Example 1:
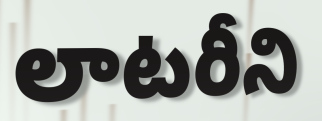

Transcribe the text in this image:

లాటరీని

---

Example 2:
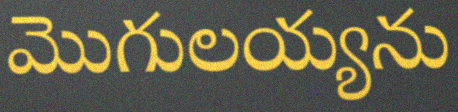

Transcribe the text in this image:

మొగులయ్యను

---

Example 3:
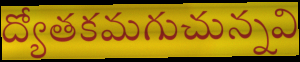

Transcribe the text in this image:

ద్యోతకమగుచున్నవి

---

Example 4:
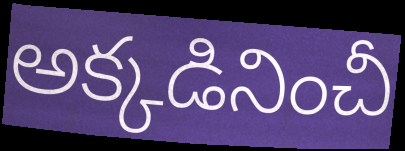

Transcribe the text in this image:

అక్కడినించీ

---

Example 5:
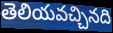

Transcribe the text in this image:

తెలియవచ్చినది